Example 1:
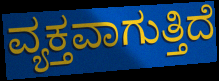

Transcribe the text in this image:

ವ್ಯಕ್ತವಾಗುತ್ತಿದೆ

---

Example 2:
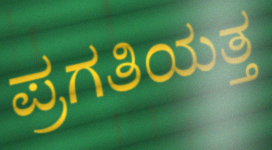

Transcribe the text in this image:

ಪ್ರಗತಿಯತ್ತ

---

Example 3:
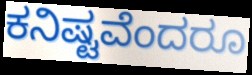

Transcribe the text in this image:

ಕನಿಷ್ಟವೆಂದರೂ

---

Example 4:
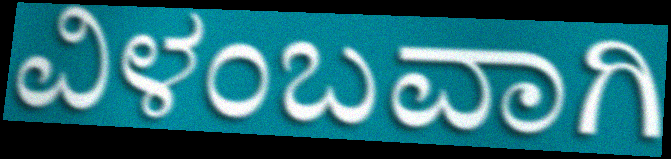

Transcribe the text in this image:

ವಿಳಂಬವಾಗಿ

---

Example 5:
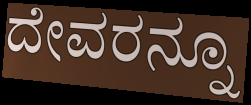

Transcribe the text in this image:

ದೇವರನ್ನೂ